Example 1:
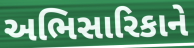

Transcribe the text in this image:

અભિસારિકાને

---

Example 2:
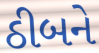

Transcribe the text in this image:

ઠીબને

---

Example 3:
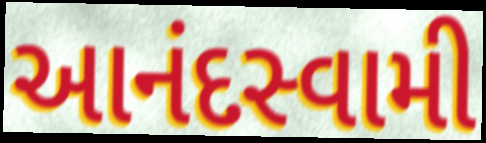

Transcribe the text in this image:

આનંદસ્વામી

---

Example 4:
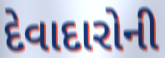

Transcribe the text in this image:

દેવાદારોની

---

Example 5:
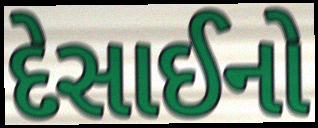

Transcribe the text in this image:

દેસાઈનો